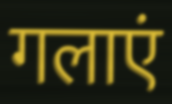
गलाएं